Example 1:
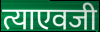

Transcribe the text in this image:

त्याएवजी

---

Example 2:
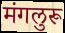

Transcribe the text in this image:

मंगलुरू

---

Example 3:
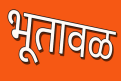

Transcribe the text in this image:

भूतावळ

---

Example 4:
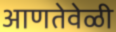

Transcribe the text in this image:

आणतेवेळी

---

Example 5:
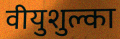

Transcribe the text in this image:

वीयुशुल्का